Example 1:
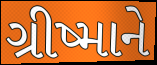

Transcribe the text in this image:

ગ્રીષ્માને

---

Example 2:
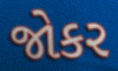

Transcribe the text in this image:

જોકર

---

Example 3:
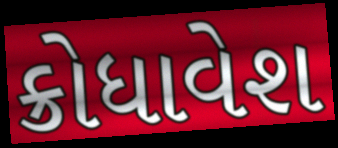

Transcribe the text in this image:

ક્રોધાવેશ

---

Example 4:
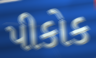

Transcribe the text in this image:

પીકોક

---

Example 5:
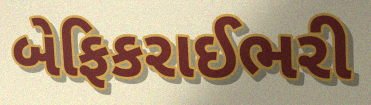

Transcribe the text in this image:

બેફિકરાઈભરી